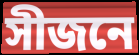
সীজনে